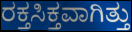
ರಕ್ತಸಿಕ್ತವಾಗಿತ್ತು